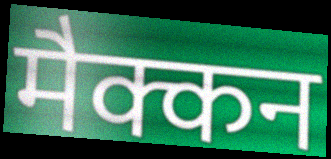
मैक्कन